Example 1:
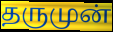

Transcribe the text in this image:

தருமுன்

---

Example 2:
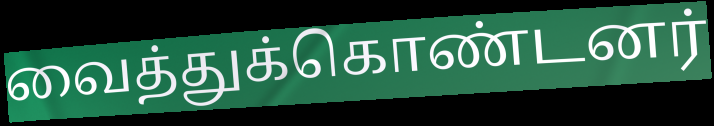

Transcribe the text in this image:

வைத்துக்கொண்டனர்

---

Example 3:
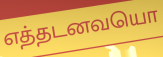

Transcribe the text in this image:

எத்தடனவயொ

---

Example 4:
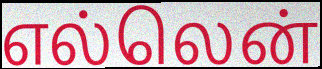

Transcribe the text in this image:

எல்லென்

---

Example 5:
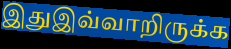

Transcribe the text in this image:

இதுஇவ்வாறிருக்க